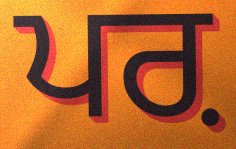
ਪਰ਼